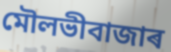
মৌলভীবাজাৰ